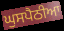
ਘੁਸਪੈਠੀਆ